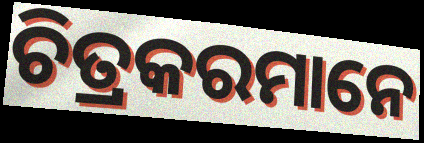
ଚିତ୍ରକରମାନେ